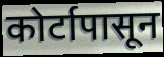
कोर्टापासून